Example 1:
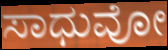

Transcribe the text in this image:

ಸಾಧುವೋ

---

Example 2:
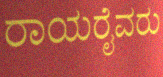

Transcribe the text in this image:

ರಾಯರೈವರು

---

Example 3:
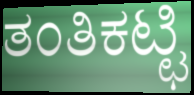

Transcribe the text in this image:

ತಂತಿಕಟ್ಟಿ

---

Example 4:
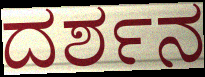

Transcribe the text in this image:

ದರ್ಶನ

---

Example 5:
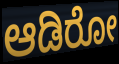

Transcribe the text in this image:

ಆಡಿರೋ